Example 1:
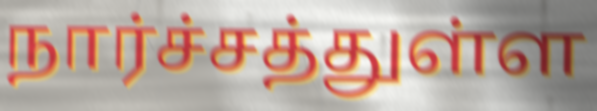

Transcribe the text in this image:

நார்ச்சத்துள்ள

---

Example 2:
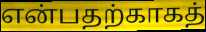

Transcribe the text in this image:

என்பதற்காகத்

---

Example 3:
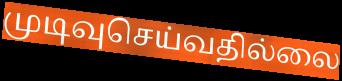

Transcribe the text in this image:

முடிவுசெய்வதில்லை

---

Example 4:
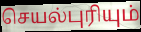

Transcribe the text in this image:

செயல்புரியும்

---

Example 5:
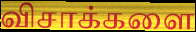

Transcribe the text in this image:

விசாக்களை